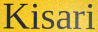
Kisari